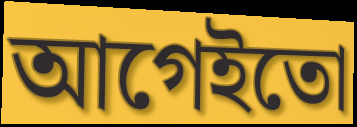
আগেইতো